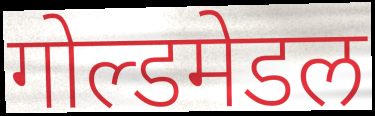
गोल्डमेडल